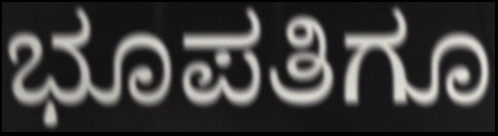
ಭೂಪತಿಗೂ